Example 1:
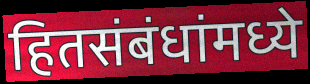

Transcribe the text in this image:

हितसंबंधांमध्ये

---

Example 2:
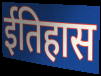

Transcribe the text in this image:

ईतिहास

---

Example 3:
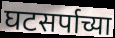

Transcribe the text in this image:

घटसर्पाच्या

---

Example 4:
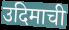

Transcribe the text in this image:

उदिमाची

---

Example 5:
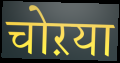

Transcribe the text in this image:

चोऱया